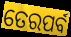
ତେରପର୍ବ